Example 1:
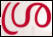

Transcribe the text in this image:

ശ്ര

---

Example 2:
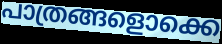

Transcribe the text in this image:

പാത്രങ്ങളൊക്കെ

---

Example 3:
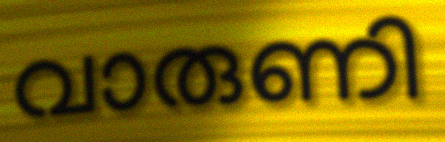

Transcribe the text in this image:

വാരുണി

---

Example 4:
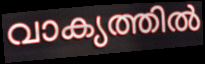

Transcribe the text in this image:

വാക്യത്തിൽ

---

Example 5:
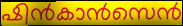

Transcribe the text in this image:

ഷിൻകാൻസെൻ